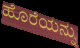
ಹೊರೆಯನ್ನು